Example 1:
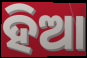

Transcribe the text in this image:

ହିଆ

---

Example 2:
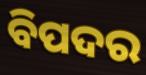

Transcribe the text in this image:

ବିପଦର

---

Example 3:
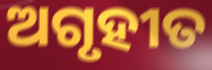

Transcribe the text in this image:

ଅଗୃହୀତ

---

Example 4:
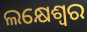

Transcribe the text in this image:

ଲକ୍ଷେଶ୍ଵର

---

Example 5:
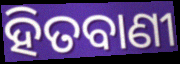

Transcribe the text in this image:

ହିତବାଣୀ